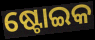
ଷ୍ଟୋଇକ